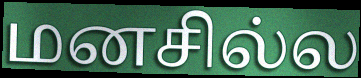
மனசில்ல